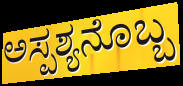
ಅಸ್ಪಶ್ಯನೊಬ್ಬ